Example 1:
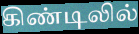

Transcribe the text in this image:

கிண்டிலில்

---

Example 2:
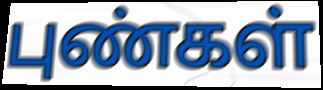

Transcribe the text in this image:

புண்கள்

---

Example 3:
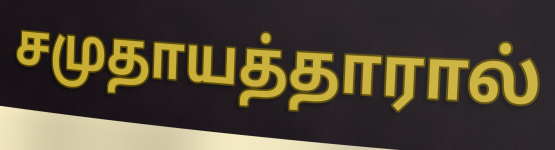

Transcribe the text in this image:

சமுதாயத்தாரால்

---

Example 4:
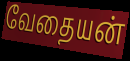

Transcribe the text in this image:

வேதையன்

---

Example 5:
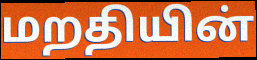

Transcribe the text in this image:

மறதியின்